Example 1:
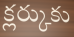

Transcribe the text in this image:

క్లర్కుకు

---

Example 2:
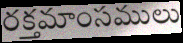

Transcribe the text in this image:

రక్తమాంసములు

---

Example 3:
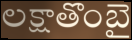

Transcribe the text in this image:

లక్షాతొంబై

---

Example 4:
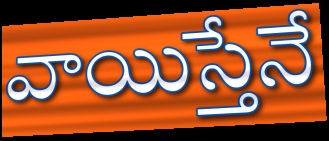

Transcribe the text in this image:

వాయిస్తేనే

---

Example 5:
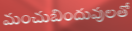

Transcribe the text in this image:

మంచుబిందువులతో